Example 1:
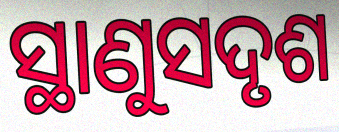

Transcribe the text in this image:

ସ୍ଥାଣୁସଦୃଶ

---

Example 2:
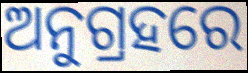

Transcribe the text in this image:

ଅନୁଗ୍ରହରେ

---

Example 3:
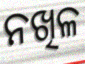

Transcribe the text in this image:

ନଖିଳ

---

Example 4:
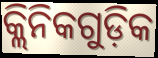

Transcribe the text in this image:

କ୍ଲିନିକଗୁଡ଼ିକ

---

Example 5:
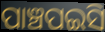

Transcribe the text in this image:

ପାଞ୍ଚପଇସି